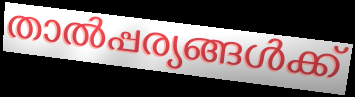
താൽപ്പര്യങ്ങൾക്ക്